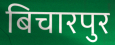
बिचारपुर